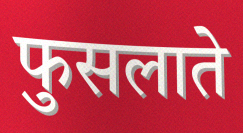
फुसलाते